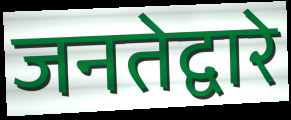
जनतेद्वारे